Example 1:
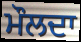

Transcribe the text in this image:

ਮੌਲਦਾ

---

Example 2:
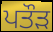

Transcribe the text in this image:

ਪਤੌੜ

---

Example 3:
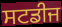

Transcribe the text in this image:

ਸਟਡੀਜ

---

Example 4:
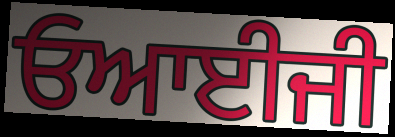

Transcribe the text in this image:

ਓਆਈਜੀ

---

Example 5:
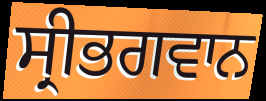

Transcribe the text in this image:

ਸ੍ਰੀਭਗਵਾਨ